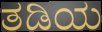
ತಡಿಯ